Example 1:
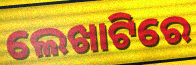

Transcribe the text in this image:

ଲେଖାଟିରେ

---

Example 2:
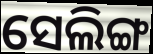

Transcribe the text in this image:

ସେଲିଙ୍ଗ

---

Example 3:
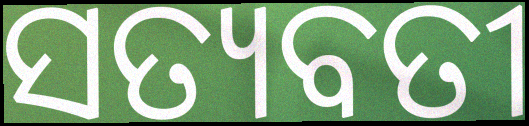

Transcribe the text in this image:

ସତ୍ୟବତୀ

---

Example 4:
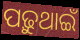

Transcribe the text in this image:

ପଢ଼ୁଥାଇଁ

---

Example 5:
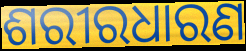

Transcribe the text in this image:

ଶରୀରଧାରଣ